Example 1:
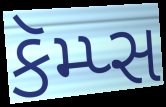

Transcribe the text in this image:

કૅમ્પ્સ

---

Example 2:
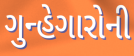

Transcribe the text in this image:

ગુન્હેગારોની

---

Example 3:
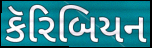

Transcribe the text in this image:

કૅરિબિયન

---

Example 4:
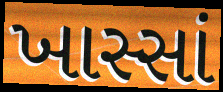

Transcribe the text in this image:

ખાસ્સાં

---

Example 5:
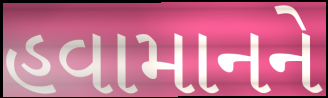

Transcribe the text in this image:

હવામાનને